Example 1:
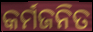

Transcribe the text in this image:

କର୍ମଜନିତ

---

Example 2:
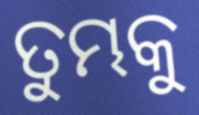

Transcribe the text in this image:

ତୁମ୍ଭକୁ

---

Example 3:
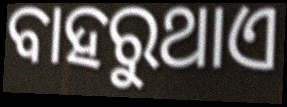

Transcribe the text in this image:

ବାହରୁଥାଏ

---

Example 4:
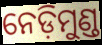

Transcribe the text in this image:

ନେଡ଼ିମୁଣ୍ଡ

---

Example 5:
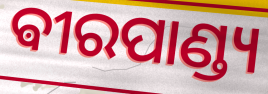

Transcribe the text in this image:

ଵୀରପାଣ୍ଡ୍ୟ